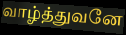
வாழ்த்துவனே